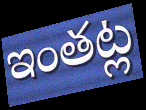
ఇంతట్ల